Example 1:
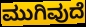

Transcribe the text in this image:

ಮುಗಿವುದೆ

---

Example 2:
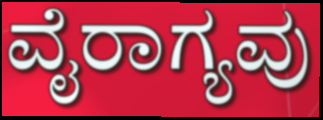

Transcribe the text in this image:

ವೈರಾಗ್ಯವು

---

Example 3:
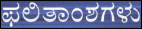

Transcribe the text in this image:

ಫಲಿತಾಂಶಗಳು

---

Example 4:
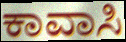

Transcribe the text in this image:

ಕಾವಾಸಿ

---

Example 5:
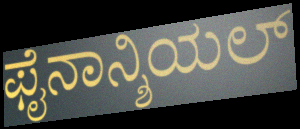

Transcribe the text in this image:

ಫೈನಾನ್ಶಿಯಲ್